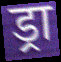
ड्रा